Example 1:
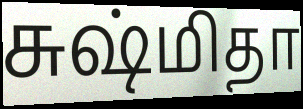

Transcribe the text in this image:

சுஷ்மிதா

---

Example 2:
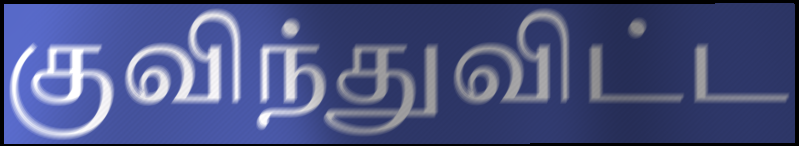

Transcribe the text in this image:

குவிந்துவிட்ட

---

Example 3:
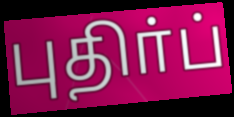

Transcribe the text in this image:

புதிர்ப்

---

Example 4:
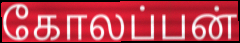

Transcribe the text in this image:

கோலப்பன்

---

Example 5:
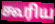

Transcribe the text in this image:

கூரிய